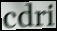
cdri